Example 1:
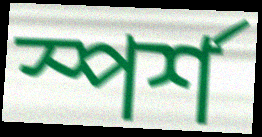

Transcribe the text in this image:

স্পর্শ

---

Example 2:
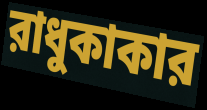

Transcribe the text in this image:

রাধুকাকার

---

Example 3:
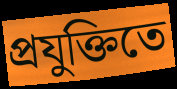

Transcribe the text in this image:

প্রযুক্তিতে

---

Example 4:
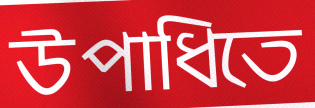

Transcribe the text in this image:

উপাধিতে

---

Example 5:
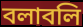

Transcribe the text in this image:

বলাবলি